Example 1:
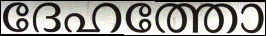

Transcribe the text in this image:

ദേഹത്തോ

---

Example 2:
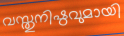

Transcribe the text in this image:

വസ്തുനിഷ്ഠവുമായി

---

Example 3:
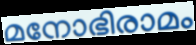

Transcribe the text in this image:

മനോഭിരാമം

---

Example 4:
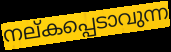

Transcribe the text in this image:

നല്കപ്പെടാവുന്ന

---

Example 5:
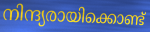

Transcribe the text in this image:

നിന്ദ്യരായിക്കൊണ്ട്